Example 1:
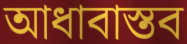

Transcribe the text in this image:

আধাবাস্তব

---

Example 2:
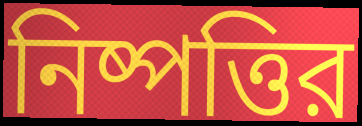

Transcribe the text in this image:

নিষ্পত্তির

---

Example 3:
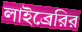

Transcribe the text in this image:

লাইব্রেরির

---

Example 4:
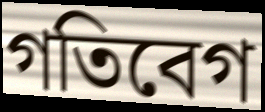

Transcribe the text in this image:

গতিবেগ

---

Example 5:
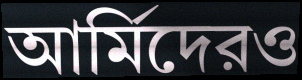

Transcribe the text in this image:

আর্মিদেরও